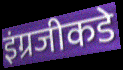
इंग्रजीकडे